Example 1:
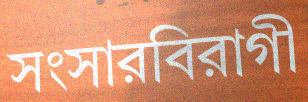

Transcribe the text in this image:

সংসারবিরাগী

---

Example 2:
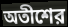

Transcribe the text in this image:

অতীশের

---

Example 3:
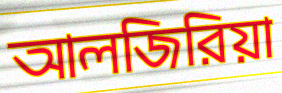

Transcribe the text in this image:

আলজিরিয়া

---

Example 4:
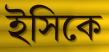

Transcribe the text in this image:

ইসিকে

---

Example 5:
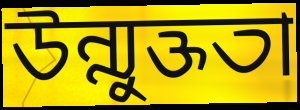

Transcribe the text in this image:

উন্মুক্ততা